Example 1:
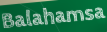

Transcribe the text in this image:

Balahamsa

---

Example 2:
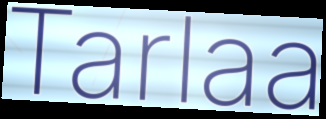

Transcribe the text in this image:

Tarlaa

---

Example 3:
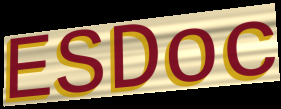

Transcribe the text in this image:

ESDoc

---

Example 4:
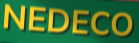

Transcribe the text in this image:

NEDECO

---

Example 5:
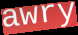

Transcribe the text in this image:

awry